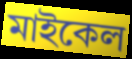
মাইকেল